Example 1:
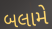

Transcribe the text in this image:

બલામે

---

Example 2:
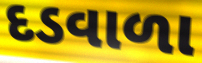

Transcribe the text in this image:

દડવાળા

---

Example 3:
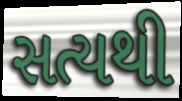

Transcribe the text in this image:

સત્યથી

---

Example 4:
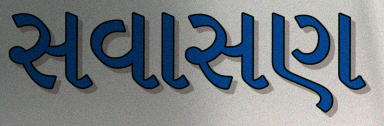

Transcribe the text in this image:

સવાસણ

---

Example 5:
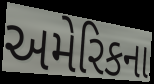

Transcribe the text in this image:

અમેરિકના